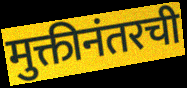
मुक्तीनंतरची